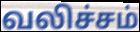
வலிச்சம்